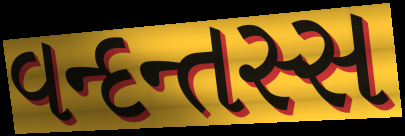
વન્દન્તસ્સ